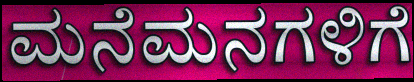
ಮನೆಮನಗಳಿಗೆ